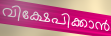
വിക്ഷേപിക്കാൻ